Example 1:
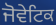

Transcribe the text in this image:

ਜੋਵੇਟਿਕ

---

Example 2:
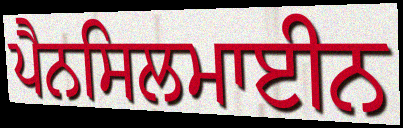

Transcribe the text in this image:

ਪੈਨਸਿਲਮਾਈਨ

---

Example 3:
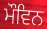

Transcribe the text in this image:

ਮੌਵਿਨ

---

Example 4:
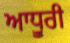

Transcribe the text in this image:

ਆਧੂਰੀ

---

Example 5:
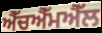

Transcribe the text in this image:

ਐੱਚਐੱਮਐੱਲ